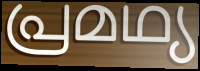
പ്രമഥ്യ